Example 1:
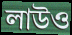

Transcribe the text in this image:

লাউও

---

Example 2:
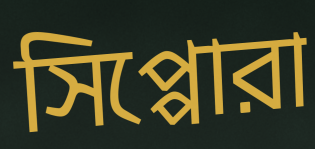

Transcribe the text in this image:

সিপ্পোরা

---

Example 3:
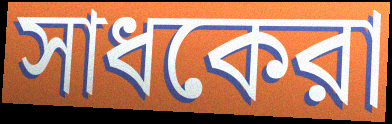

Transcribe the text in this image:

সাধকেরা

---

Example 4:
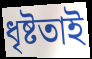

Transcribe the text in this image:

ধৃষ্টতাই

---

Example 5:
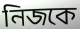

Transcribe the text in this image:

নিজকে